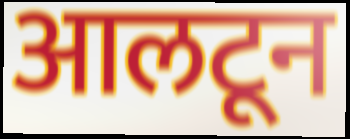
आलटून